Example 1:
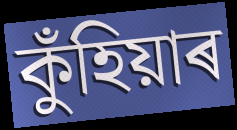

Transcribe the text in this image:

কুঁহিয়াৰ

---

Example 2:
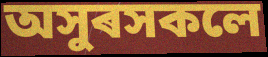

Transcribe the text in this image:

অসুৰসকলে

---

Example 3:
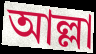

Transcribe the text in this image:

আল্লা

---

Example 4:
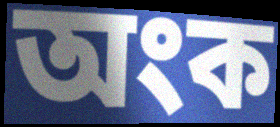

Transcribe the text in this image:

অংক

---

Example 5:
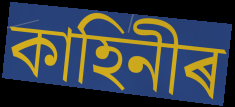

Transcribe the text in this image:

কাহিনীৰ